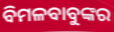
ବିମଳବାବୁଙ୍କର